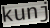
kunj